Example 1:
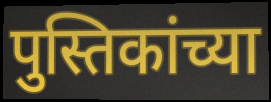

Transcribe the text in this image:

पुस्तिकांच्या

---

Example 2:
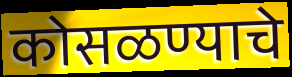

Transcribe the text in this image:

कोसळण्याचे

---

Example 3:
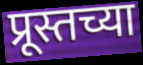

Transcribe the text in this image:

प्रूस्तच्या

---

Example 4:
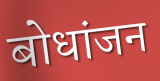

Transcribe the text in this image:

बोधांजन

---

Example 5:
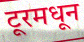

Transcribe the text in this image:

टूरमधून